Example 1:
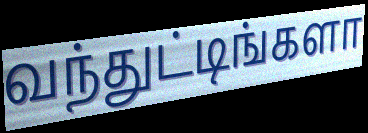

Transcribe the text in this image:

வந்துட்டிங்களா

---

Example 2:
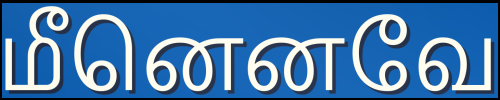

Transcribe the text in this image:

மீனெனவே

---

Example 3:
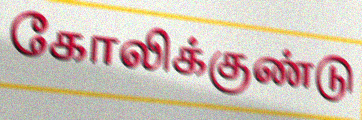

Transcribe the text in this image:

கோலிக்குண்டு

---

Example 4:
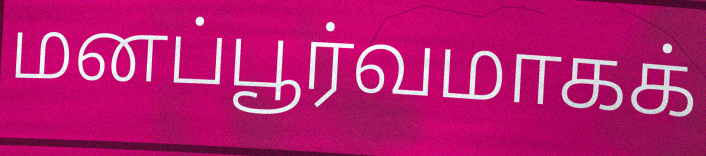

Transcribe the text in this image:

மனப்பூர்வமாகக்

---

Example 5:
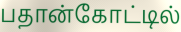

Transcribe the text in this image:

பதான்கோட்டில்